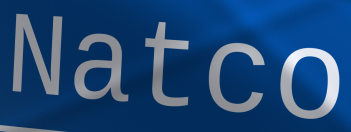
Natco